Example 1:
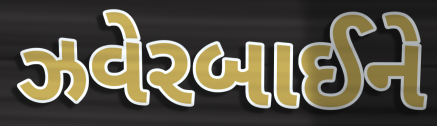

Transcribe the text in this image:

ઝવેરબાઈને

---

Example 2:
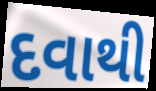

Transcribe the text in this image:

દવાથી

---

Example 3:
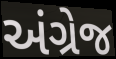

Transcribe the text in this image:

અંગ્રેજ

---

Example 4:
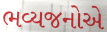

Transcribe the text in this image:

ભવ્યજનોએ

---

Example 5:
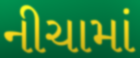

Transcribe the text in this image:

નીચામાં